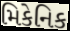
મિકેનિક